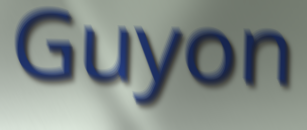
Guyon